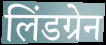
लिंडग्रेन